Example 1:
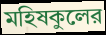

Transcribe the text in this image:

মহিষকুলের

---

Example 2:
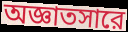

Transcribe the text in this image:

অজ্ঞাতসারে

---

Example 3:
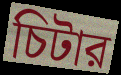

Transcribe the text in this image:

চিটার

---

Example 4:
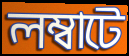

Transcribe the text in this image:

লম্বাটে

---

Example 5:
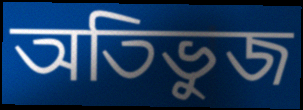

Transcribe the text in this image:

অতিভুজ